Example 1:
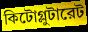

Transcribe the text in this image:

কিটোগ্লুটারেট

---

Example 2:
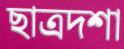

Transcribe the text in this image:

ছাত্রদশা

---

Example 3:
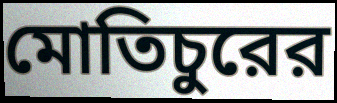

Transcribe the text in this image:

মোতিচুরের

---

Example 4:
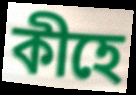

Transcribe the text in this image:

কীহে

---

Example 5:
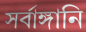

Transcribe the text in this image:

সর্বাঙ্গানি